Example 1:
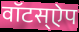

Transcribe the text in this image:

वॉटस्ऐप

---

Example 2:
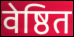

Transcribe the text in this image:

वेष्ठित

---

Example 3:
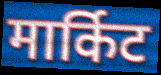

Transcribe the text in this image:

मार्किट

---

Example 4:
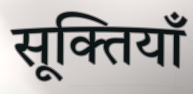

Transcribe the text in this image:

सूक्तियाँ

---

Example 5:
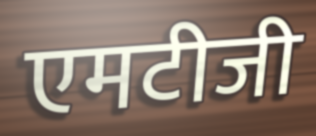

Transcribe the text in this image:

एमटीजी